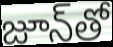
జూన్‌తో